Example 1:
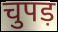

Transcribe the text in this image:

चुपड़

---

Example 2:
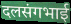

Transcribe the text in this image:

दलसंगभाई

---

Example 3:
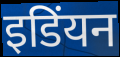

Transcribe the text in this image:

इडिंयन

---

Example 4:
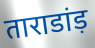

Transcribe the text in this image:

ताराडांड़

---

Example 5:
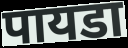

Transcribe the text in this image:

पायडा